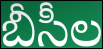
బీసీల